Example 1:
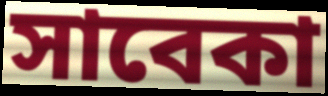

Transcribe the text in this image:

সাবেকা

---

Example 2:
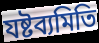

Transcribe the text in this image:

যষ্টব্যমিতি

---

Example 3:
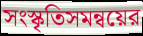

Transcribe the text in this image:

সংস্কৃতিসমন্বয়ের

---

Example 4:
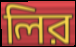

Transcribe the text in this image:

লির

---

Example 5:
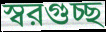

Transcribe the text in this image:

স্বরগুচ্ছ